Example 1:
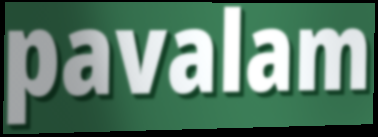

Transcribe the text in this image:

pavalam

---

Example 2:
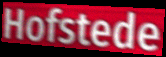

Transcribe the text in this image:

Hofstede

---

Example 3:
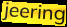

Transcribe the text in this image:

jeering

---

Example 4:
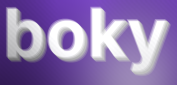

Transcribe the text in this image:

boky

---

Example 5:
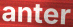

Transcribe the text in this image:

anter